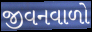
જીવનવાળો